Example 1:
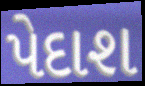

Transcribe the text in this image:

પેદાશ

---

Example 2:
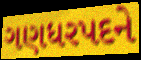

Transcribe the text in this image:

ગણધરપદને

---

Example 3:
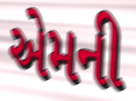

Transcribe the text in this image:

એમની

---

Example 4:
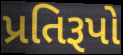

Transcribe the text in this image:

પ્રતિરૂપો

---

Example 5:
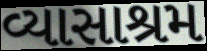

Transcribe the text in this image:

વ્યાસાશ્રમ